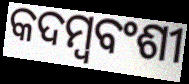
କଦମ୍ବବଂଶୀ